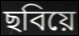
ছবিয়ে